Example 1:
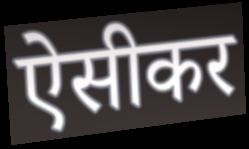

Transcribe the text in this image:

ऐसीकर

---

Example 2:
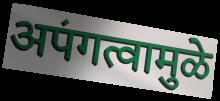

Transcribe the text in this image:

अपंगत्वामुळे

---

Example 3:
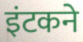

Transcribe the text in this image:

इंटकने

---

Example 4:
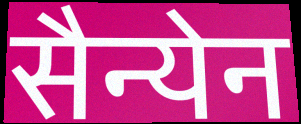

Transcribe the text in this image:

सैन्येन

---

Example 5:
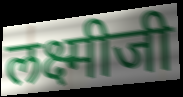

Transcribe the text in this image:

लक्ष्मीजी